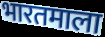
भारतमाला